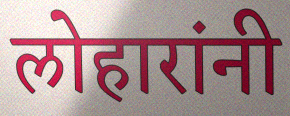
लोहारांनी